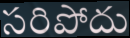
సరిపోదు